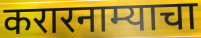
करारनाम्याचा